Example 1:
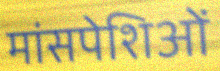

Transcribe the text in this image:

मांसपेशिओं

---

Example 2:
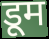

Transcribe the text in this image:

डूम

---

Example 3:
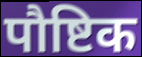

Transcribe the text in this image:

पौष्टिक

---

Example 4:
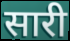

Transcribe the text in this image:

सारी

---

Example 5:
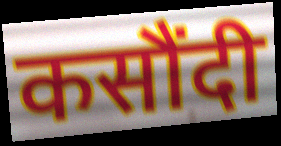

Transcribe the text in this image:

कसौंदी